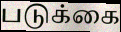
படுக்கை